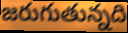
జరుగుతున్నది